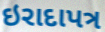
ઇરાદાપત્ર